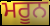
ਮਰੂਨ